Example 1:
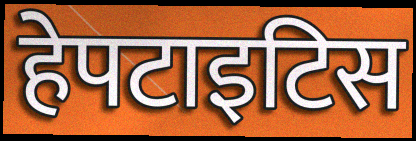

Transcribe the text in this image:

हेपटाइटिस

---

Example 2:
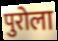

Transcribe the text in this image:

पुरोला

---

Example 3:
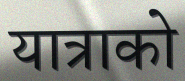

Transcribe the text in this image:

यात्राको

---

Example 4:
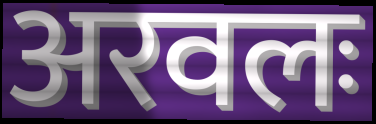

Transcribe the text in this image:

अरवलः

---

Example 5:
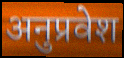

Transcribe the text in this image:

अनुप्रवेश